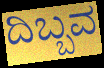
ದಿಬ್ಬವ